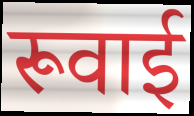
रूवाई